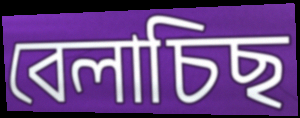
বেলাচিছ